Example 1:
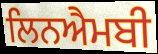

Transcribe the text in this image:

ਲਿਨਐਮਬੀ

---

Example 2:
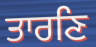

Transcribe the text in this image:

ਤਾਰਣਿ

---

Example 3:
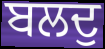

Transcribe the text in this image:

ਬਲਦੁ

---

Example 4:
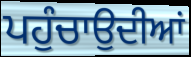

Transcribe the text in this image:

ਪਹੁੰਚਾਉਦੀਆਂ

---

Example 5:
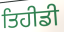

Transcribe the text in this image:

ਤਿਹੀਡੀ